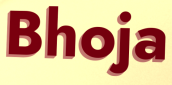
Bhoja